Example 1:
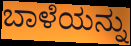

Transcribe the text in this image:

ಬಾಳೆಯನ್ನು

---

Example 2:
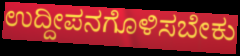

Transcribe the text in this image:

ಉದ್ದೀಪನಗೊಳಿಸಬೇಕು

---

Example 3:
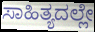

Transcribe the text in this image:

ಸಾಹಿತ್ಯದಲ್ಲೇ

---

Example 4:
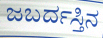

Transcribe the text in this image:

ಜಬರ್ದಸ್ತಿನ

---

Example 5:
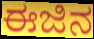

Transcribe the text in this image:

ಈಜಿನ